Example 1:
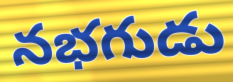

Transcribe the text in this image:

నభగుడు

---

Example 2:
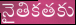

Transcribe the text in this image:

నైతికతకు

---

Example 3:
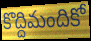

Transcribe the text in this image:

కొద్దిమందికో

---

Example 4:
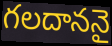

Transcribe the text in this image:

గలదాననై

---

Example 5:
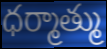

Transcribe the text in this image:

ధర్మాత్ము